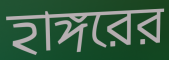
হাঙ্গরের